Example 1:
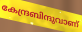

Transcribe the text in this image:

കേന്ദ്രബിന്ദുവാണ്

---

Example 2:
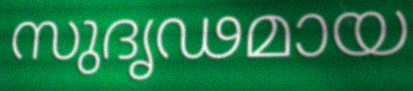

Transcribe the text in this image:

സുദൃഢമായ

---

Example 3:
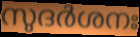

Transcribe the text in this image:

സുദർശനഃ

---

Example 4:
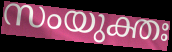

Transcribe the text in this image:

സംയുക്തഃ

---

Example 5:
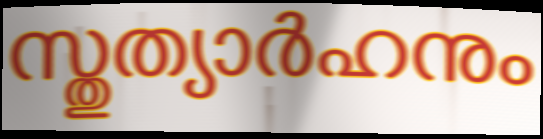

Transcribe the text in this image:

സ്തുത്യാർഹനും